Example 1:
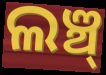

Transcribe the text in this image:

ଲଞ୍ଚ୍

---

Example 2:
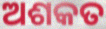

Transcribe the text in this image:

ଅଶକତ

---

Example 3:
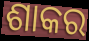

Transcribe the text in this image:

ଶାକର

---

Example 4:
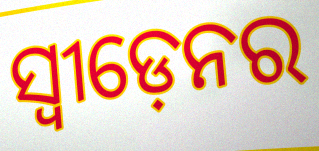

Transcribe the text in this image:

ସ୍ଵୀଡ଼େନର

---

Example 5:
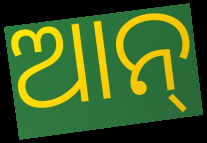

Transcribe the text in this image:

ଆନ୍